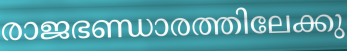
രാജഭണ്ഡാരത്തിലേക്കു